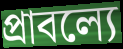
প্রাবল্যে